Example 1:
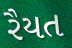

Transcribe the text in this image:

રૈયત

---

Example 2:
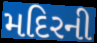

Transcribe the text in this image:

મદિરની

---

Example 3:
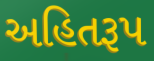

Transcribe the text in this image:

અહિતરૂપ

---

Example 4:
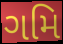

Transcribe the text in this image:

ગમિ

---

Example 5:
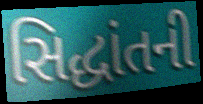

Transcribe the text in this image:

સિદ્ધાંતની